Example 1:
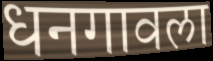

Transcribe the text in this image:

धनगावला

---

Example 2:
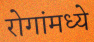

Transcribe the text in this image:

रोगांमध्ये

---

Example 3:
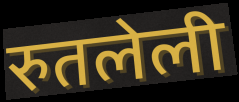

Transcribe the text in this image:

रुतलेली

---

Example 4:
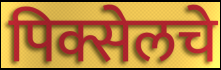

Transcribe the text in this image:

पिक्सेलचे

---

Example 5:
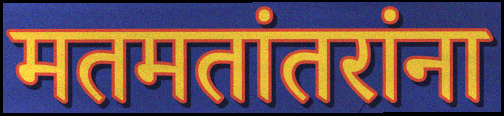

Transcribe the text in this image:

मतमतांतरांना